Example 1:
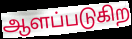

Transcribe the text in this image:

ஆளப்படுகிற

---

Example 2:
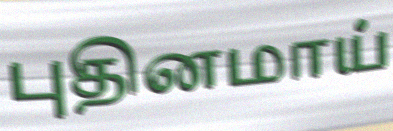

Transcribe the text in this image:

புதினமாய்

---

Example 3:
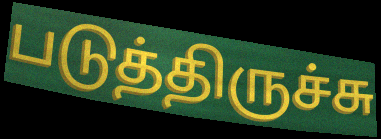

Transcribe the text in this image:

படுத்திருச்சு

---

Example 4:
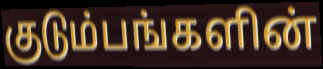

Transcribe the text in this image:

குடும்பங்களின்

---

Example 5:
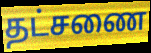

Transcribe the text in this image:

தட்சணை